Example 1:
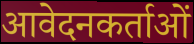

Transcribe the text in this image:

आवेदनकर्ताओं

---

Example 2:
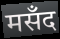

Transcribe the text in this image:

मसँद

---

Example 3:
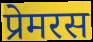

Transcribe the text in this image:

प्रेमरस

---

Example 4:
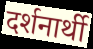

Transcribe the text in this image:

दर्शनार्थी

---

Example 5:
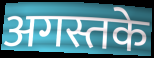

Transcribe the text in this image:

अगस्तके